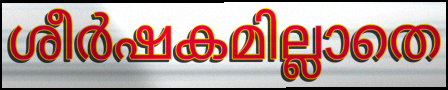
ശീർഷകമില്ലാതെ